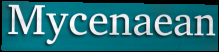
Mycenaean